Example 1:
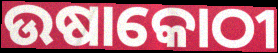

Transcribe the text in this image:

ଉଷାକୋଠୀ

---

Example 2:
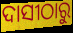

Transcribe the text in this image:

ଦାସୀଠାରୁ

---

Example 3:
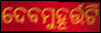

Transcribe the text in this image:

ଦେବମୁହୂର୍ତ୍ତଟି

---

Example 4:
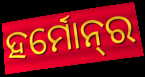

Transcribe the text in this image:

ହର୍ମୋନ୍‌ର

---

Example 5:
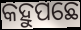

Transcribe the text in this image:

କହୁପଛେ